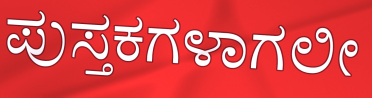
ಪುಸ್ತಕಗಳಾಗಲೀ